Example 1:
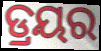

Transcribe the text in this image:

ଡ୍ରୟର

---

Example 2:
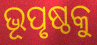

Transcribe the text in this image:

ଭୂପୃଷ୍ଠକୁ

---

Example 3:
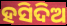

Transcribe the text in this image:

ହସିଦିଅ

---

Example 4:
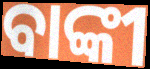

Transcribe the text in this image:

ବାଙ୍କୀ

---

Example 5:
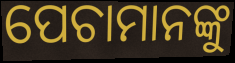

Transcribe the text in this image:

ପେଚାମାନଙ୍କୁ